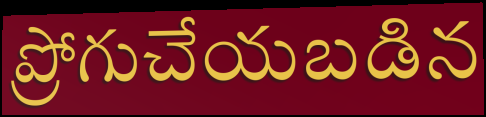
ప్రోగుచేయబడిన